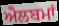
ਐਲਬਮਾਂ